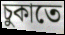
চুকাতে